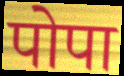
पोपा